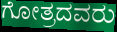
ಗೋತ್ರದವರು